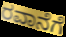
ರವಾನೆಗೆ